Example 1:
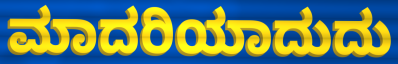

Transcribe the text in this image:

ಮಾದರಿಯಾದುದು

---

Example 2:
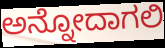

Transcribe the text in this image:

ಅನ್ನೋದಾಗಲಿ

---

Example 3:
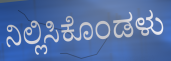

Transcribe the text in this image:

ನಿಲ್ಲಿಸಿಕೊಂಡಳು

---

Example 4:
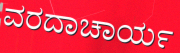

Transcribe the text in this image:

ವರದಾಚಾರ್ಯ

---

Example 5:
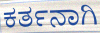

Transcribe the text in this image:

ಕರ್ತನಾಗಿ